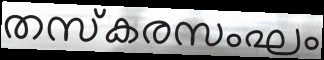
തസ്കരസംഘം